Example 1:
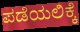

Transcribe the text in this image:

ಪಡೆಯಲಿಕ್ಕೆ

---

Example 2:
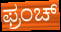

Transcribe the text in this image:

ಫ್ರಂಚ್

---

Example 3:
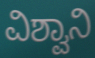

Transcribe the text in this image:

ವಿಶ್ವಾನಿ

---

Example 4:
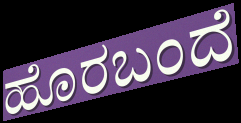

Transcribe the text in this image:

ಹೊರಬಂದೆ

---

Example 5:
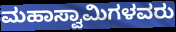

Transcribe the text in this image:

ಮಹಾಸ್ವಾಮಿಗಳವರು